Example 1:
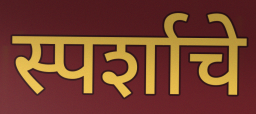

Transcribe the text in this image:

स्पर्शाचे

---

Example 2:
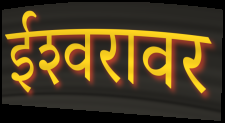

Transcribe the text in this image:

ईश्‍वरावर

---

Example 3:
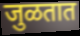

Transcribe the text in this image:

जुळतात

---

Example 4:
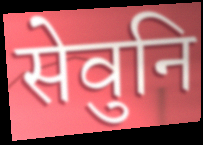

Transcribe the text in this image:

सेवुनि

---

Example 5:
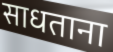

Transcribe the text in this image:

साधताना